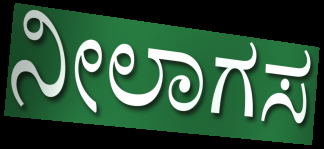
ನೀಲಾಗಸ